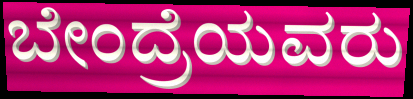
ಬೇಂದ್ರೆಯವರು